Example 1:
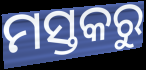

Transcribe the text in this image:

ମସ୍ତକରୁ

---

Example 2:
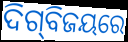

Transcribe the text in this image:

ଦିଗ୍‌ବିଜୟରେ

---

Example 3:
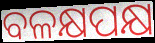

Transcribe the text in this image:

ବଳକ୍ଷପକ୍ଷ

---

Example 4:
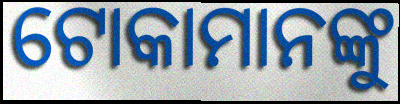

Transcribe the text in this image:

ଟୋକାମାନଙ୍କୁ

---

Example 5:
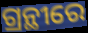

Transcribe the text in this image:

ଗ୍ରନ୍ଥୀରେ